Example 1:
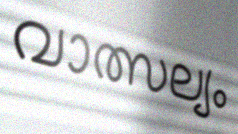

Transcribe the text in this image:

വാത്സല്യം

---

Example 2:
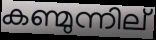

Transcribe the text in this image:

കണ്മുന്നില്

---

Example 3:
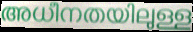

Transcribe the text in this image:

അധീനതയിലുള്ള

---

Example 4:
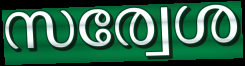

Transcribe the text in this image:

സര്വേശ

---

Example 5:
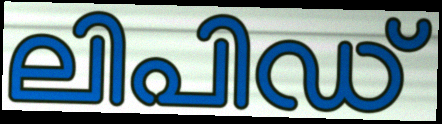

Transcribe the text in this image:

ലിപിഡ്